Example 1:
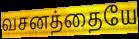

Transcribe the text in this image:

வசனத்தையே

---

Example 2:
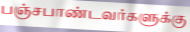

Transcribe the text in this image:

பஞ்சபாண்டவர்களுக்கு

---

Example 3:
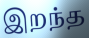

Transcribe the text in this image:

இறந்த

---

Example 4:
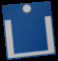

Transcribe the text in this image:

ப்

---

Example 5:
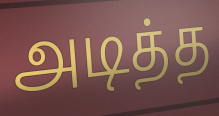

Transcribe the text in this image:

அடித்த